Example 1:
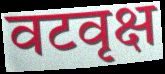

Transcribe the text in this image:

वटवृक्ष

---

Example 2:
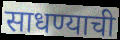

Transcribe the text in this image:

साधण्याची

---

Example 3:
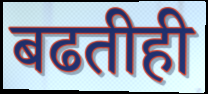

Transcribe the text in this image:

बढतीही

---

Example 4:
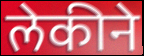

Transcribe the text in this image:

लेकीने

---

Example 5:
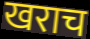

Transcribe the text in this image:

खराच